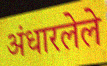
अंधारलेले